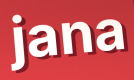
jana